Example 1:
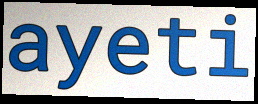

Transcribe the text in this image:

ayeti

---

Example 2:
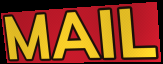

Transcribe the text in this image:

MAIL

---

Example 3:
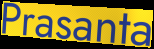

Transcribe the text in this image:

Prasanta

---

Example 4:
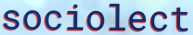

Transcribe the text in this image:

sociolect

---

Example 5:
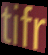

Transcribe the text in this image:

tifr